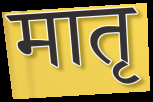
मातृ